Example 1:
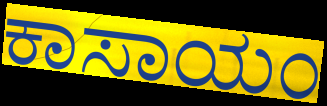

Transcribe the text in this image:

ಕಾಸಾಯಂ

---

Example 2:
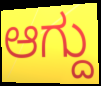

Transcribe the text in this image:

ಆಗ್ದು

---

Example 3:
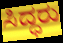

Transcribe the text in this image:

ಸಿದ್ಧರು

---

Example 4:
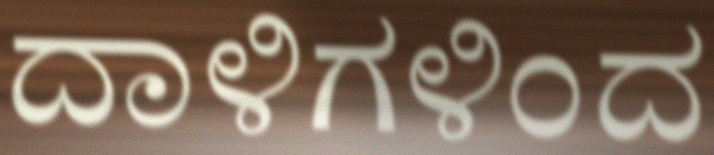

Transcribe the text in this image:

ದಾಳಿಗಳಿಂದ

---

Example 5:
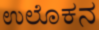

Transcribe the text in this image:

ಉಲೊಕನ